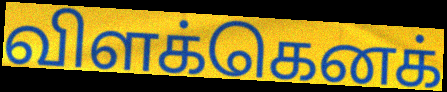
விளக்கெனக்